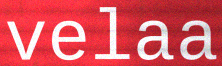
velaa